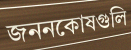
জননকোষগুলি